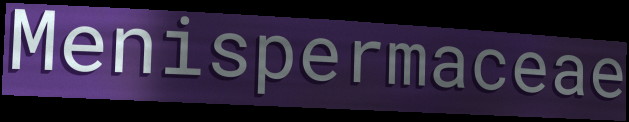
Menispermaceae